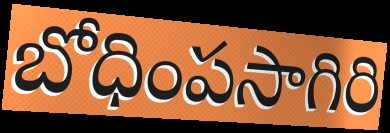
బోధింపసాగిరి